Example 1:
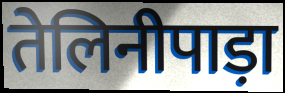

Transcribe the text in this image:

तेलिनीपाड़ा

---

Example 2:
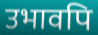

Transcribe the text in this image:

उभावपि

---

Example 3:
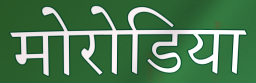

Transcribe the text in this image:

मोरोडिया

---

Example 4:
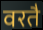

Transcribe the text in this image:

वरतै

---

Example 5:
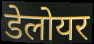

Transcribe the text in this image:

डेलोयर